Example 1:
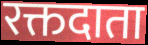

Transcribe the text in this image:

रक्तदाता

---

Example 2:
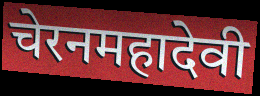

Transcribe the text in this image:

चेरनमहादेवी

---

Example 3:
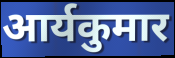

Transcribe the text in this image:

आर्यकुमार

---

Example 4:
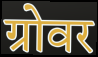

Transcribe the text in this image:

ग्रोवर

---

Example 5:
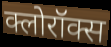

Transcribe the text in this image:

क्लोरॉक्स